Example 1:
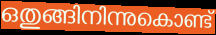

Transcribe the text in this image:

ഒതുങ്ങിനിന്നുകൊണ്ട്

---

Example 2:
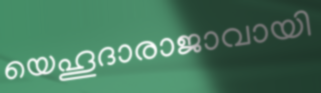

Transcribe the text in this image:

യെഹൂദാരാജാവായി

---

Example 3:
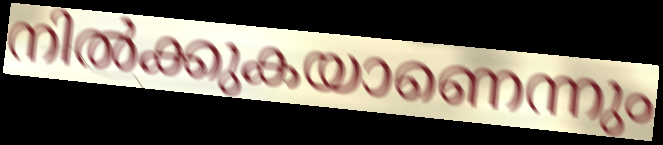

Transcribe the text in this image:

നിൽക്കുകയാണെന്നും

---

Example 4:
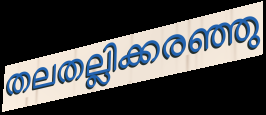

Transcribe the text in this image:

തലതല്ലിക്കരഞ്ഞു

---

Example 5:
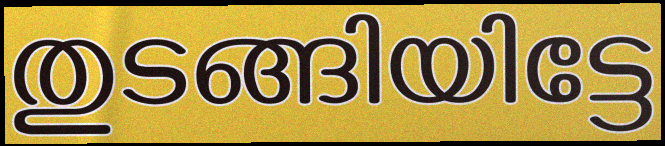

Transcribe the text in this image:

തുടങ്ങിയിട്ടേ